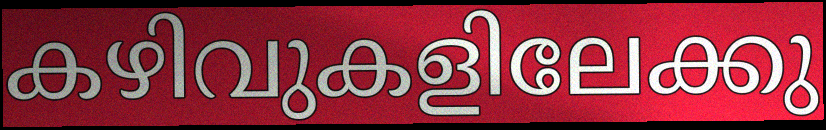
കഴിവുകളിലേക്കു